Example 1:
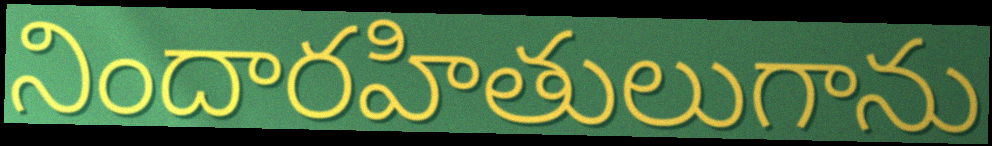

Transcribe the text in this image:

నిందారహితులుగాను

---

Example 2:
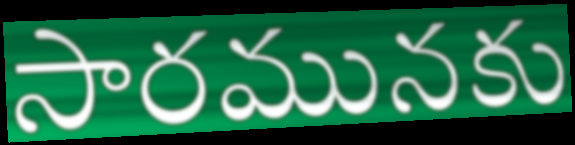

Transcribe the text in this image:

సారమునకు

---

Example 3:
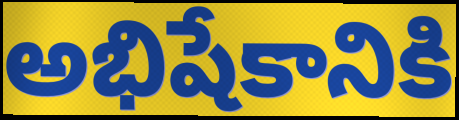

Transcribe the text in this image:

అభిషేకానికి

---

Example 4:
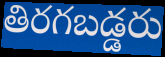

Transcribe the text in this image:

తిరగబడ్డరు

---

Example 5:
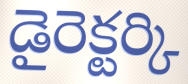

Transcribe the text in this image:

డైరెక్టర్కి